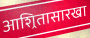
आश्रितासारखा